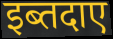
इब्तदाए